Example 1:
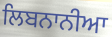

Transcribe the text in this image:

ਲਿਬਨਾਨੀਆ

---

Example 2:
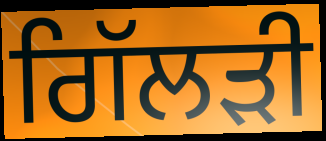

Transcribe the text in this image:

ਗਿੱਲੜੀ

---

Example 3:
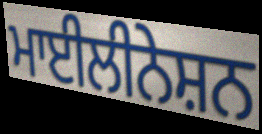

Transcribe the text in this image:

ਮਾਈਲੀਨੇਸ਼ਨ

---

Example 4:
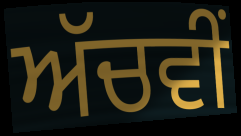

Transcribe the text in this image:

ਅੱਚਵੀਂ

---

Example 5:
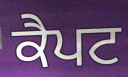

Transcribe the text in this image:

ਕੈਪਟ